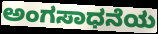
ಅಂಗಸಾಧನೆಯ